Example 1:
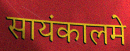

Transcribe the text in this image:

सायंकालमे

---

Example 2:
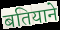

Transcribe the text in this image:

बतियाने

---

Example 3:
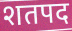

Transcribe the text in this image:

शतपद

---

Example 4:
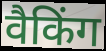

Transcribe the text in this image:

वैकिंग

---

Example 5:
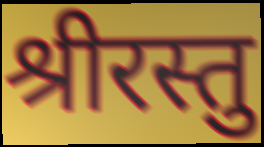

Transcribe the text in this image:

श्रीरस्तु